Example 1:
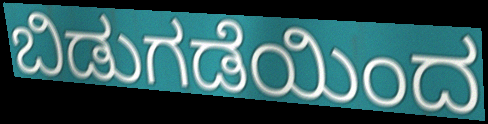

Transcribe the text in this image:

ಬಿಡುಗಡೆಯಿಂದ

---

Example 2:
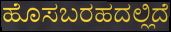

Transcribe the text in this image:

ಹೊಸಬರಹದಲ್ಲಿದೆ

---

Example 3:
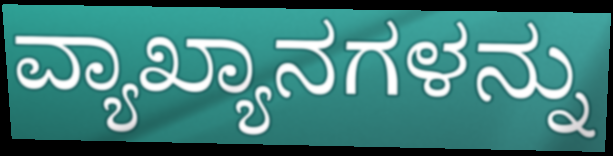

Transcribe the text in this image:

ವ್ಯಾಖ್ಯಾನಗಳನ್ನು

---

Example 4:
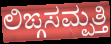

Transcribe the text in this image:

ಲಿಙ್ಗಸಮ್ಪತ್ತಿ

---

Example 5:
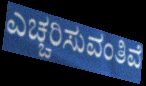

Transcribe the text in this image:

ಎಚ್ಚರಿಸುವಂತಿವೆ